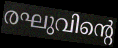
രഘുവിന്റെ